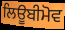
ਲਿਊਬੀਮੋਵ